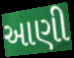
આણી